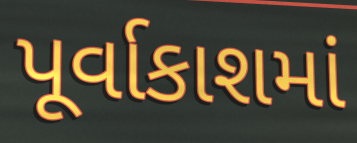
પૂર્વાકાશમાં